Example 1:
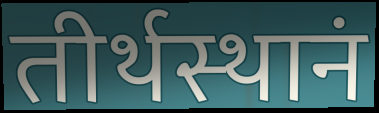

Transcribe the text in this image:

तीर्थस्थानं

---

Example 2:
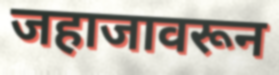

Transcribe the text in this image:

जहाजावरून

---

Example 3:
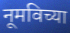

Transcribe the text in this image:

नूमविच्या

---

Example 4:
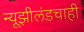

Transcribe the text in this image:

न्यूझीलंडचाही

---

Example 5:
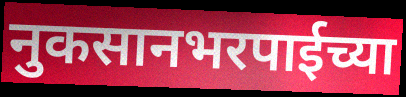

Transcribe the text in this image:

नुकसानभरपाईच्या